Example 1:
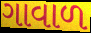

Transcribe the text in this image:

ગાવાળ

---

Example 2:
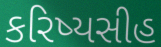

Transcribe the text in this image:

કરિષ્યસીહ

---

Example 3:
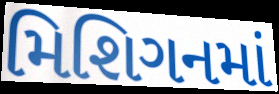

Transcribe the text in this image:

મિશિગનમાં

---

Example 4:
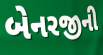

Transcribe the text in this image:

બેનરજીની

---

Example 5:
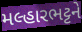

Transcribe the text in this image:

મલ્હારભટ્ટને